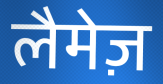
लैमेज़